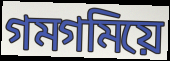
গমগমিয়ে